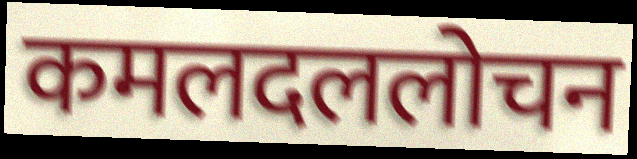
कमलदललोचन